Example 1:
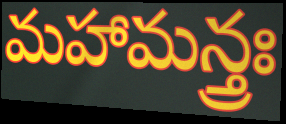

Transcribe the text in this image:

మహామన్త్రః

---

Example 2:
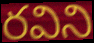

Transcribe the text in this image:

రవిని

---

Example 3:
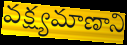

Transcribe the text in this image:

వక్ష్యమాణాని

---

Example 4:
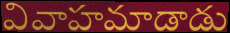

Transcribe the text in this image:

వివాహమాడాడు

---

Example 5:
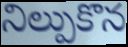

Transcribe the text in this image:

నిల్పుకొన